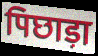
पिछाड़ा